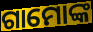
ଗାମୋଙ୍କ